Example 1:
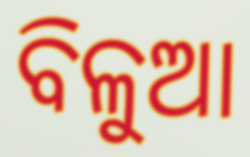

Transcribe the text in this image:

ବିଳୁଆ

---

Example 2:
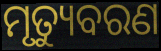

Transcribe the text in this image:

ମୃତ୍ୟୁବରଣ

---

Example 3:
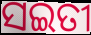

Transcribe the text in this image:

ସଇତୀ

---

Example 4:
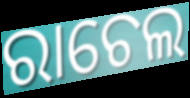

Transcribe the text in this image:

ରାଚେଲ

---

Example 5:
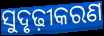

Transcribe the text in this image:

ସୁଦୃଢ଼ୀକରଣ